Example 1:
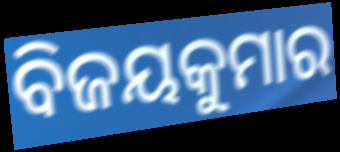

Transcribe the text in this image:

ବିଜୟକୁମାର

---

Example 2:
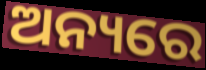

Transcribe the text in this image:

ଅନ୍ୟରେ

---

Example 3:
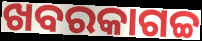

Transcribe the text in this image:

ଖବରକାଗଚ୍ଚ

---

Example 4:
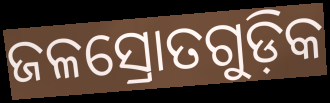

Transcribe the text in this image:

ଜଳସ୍ରୋତଗୁଡ଼ିକ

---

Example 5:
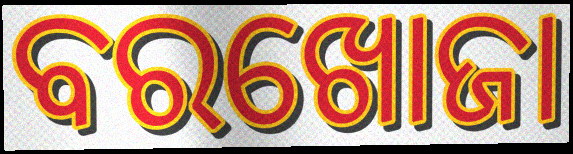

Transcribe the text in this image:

ବରଖୋଜା